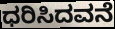
ಧರಿಸಿದವನೆ